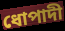
ধোপাদী